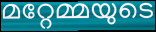
മറ്റേമ്മയുടെ